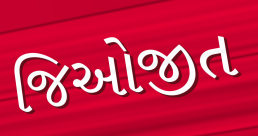
જિઓજીત